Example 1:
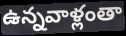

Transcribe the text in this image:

ఉన్నవాళ్లంతా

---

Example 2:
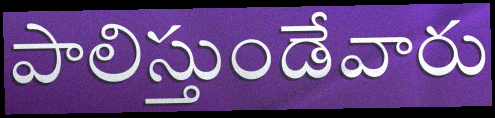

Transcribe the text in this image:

పాలిస్తుండేవారు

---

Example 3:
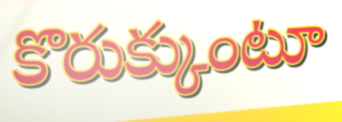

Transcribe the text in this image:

కొరుక్కుంటూ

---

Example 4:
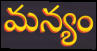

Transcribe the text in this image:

మన్యం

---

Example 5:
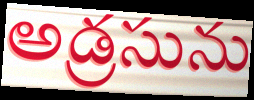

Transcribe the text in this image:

అడ్రసును